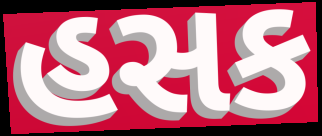
હસક